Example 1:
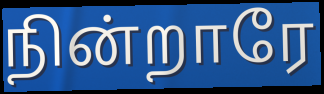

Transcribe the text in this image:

நின்றாரே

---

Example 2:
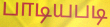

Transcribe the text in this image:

பாடியபடி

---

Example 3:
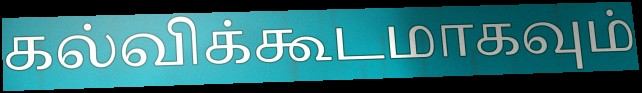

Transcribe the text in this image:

கல்விக்கூடமாகவும்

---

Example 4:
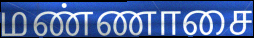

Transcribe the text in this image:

மண்ணாசை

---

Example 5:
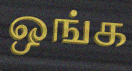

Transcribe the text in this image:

ஒங்க